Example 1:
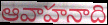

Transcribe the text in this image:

ఆవాహనాది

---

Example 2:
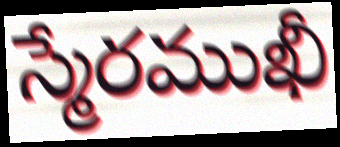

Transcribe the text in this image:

స్మేరముఖీ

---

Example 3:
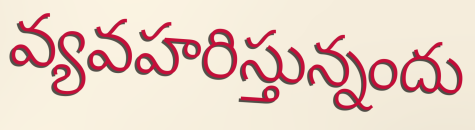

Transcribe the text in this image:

వ్యవహరిస్తున్నందు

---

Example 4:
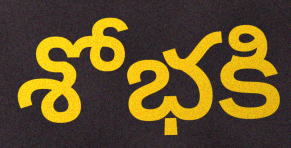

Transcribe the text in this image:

శోభకి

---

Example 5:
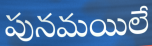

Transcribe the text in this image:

పునమయిలే